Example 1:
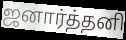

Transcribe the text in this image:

ஜனார்த்தனி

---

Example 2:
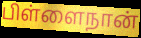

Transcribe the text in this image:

பிள்ளைநான்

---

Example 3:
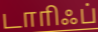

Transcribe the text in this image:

டாரிஃப்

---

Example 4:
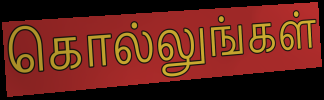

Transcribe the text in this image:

கொல்லுங்கள்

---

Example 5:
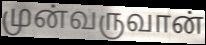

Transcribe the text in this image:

முன்வருவான்